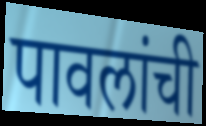
पावलांची